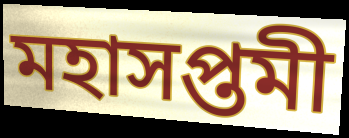
মহাসপ্তমী